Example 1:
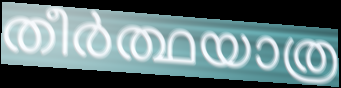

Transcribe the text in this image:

തീർത്ഥയാത്ര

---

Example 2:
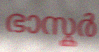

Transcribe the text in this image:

ഭാസ്കർ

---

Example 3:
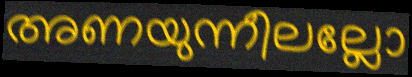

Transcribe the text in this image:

അണയുന്നീലല്ലോ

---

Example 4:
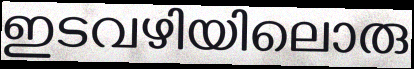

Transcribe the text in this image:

ഇടവഴിയിലൊരു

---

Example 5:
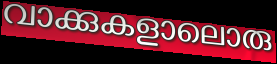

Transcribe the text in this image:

വാക്കുകളാലൊരു